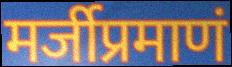
मर्जीप्रमाणं